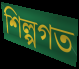
শিল্পগত